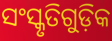
ସଂସ୍କୃତିଗୁଡ଼ିକ